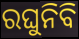
ରଘୁନିବି